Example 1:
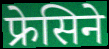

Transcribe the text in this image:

फ्रेसिने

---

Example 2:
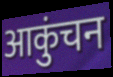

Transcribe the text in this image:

आकुंचन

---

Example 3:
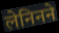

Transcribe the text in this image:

लेनिनने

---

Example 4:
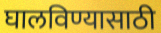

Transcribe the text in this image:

घालविण्यासाठी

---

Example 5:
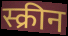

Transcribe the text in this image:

स्क्रीन